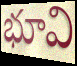
భూవి